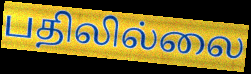
பதிலில்லை